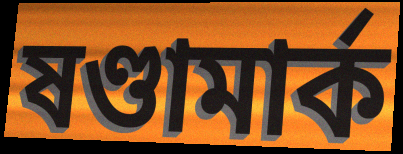
ষণ্ডামার্ক